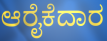
ಆರೈಕೆದಾರ